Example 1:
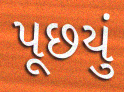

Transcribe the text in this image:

પૂછયું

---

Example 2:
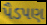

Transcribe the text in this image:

પૈડપણ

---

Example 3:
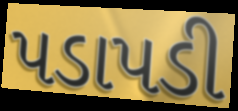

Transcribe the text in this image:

પડાપડી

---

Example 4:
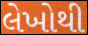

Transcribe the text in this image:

લેખોથી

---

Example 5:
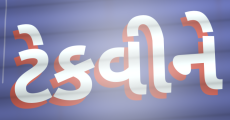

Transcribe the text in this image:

ટેકવીને